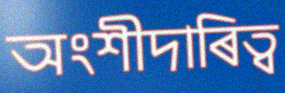
অংশীদাৰিত্ব